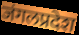
जंगलप्रदेश